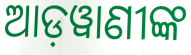
ଆଡ଼ୱାଣୀଙ୍କ